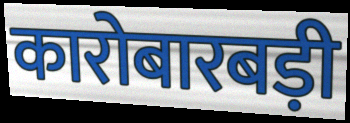
कारोबारबड़ी